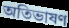
অতিভাষণ